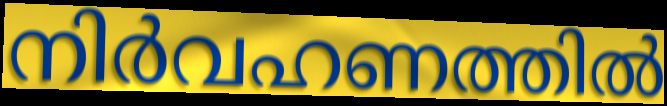
നിർവഹണത്തിൽ